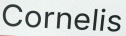
Cornelis